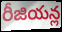
రీజియన్ల